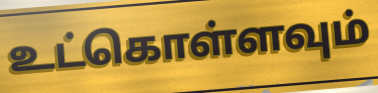
உட்கொள்ளவும்